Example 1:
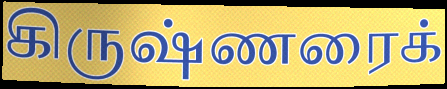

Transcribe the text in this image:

கிருஷ்ணரைக்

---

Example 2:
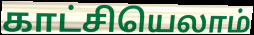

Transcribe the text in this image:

காட்சியெலாம்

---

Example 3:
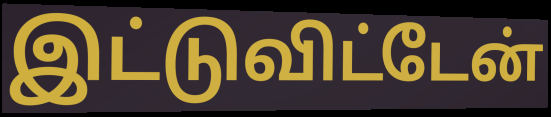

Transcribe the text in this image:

இட்டுவிட்டேன்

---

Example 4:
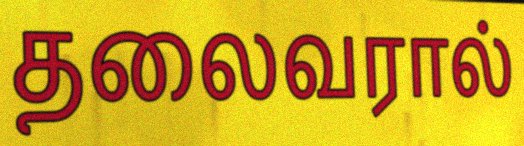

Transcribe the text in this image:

தலைவரால்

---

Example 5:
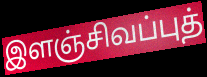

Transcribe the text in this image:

இளஞ்சிவப்புத்